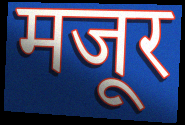
मजूर